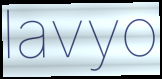
lavyo